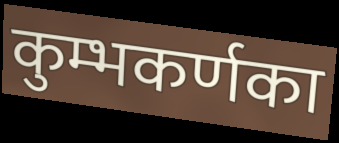
कुम्भकर्णका